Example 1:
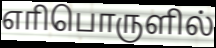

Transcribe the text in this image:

எரிபொருளில்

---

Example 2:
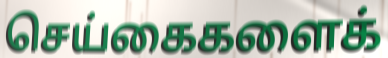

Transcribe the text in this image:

செய்கைகளைக்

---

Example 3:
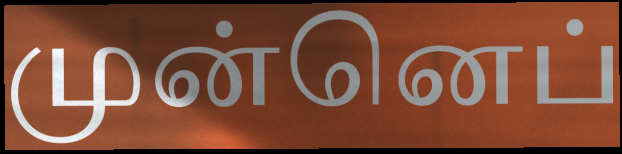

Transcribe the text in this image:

முன்னெப்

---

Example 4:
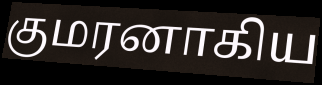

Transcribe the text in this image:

குமரனாகிய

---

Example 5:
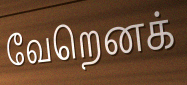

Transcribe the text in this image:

வேறெனக்